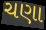
ચણા